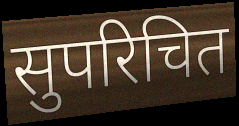
सुपरिचित